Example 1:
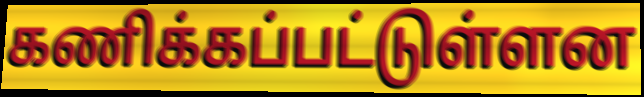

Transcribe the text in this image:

கணிக்கப்பட்டுள்ளன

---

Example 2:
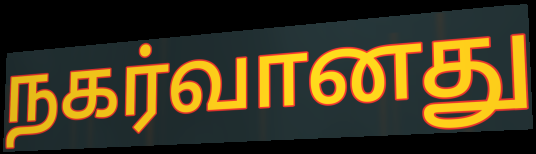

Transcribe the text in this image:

நகர்வானது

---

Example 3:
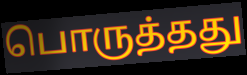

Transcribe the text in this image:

பொருத்தது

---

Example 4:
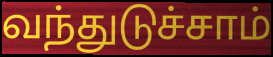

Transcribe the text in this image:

வந்துடுச்சாம்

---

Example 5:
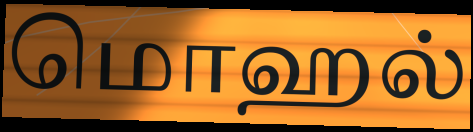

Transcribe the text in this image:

மொஹல்